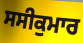
ਸਸੀਕੁਮਾਰ